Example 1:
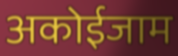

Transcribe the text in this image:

अकोईजाम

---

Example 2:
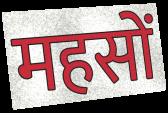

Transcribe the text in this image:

महसों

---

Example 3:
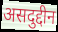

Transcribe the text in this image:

असदुद्दीन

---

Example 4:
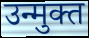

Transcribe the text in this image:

उन्मुक्त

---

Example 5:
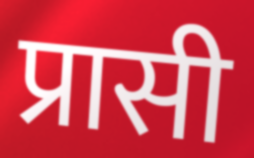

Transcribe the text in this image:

प्रासी